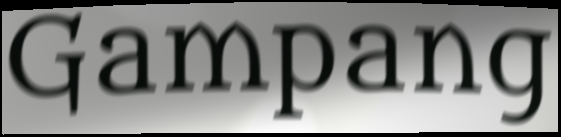
Gampang